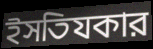
ইসতিযকার